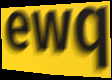
ewq